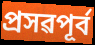
প্ৰসৱপূৰ্ব